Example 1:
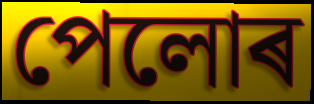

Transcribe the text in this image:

পেলোৰ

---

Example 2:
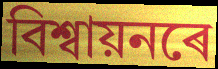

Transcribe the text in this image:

বিশ্বায়নৰে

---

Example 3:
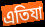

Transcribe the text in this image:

এতিযা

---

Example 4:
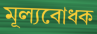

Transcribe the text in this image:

মূল্যবোধক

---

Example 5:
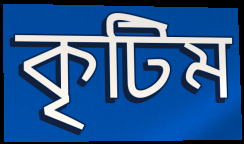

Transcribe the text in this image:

কৃটিম